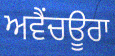
ਅਵੈਂਚਊਰਾ